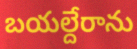
బయల్దేరాను